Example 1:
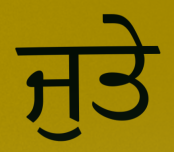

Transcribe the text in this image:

ਜੁਤੇ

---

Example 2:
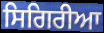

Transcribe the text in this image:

ਸਿਗਿਰੀਆ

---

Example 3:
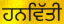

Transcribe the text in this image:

ਹਨਵਿੱਤੀ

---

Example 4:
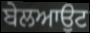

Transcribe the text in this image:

ਬੇਲਆਉਟ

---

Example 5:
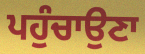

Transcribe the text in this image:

ਪਹੁੰਚਾਉਣਾ